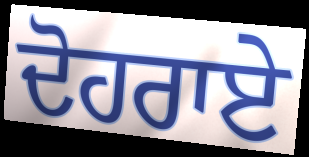
ਦੋਹਰਾਏ